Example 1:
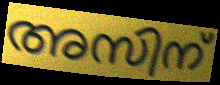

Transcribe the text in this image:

അസിന്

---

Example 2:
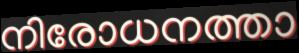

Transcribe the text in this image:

നിരോധനത്താ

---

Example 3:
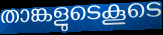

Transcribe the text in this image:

താങ്കളുടെകൂടെ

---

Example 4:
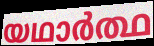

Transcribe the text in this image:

യഥാർത്ഥ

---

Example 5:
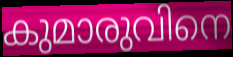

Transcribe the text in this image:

കുമാരുവിനെ